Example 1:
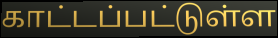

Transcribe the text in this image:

காட்டப்பட்டுள்ள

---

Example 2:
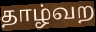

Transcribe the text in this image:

தாழ்வற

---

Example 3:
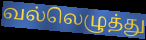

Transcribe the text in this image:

வல்லெழுத்து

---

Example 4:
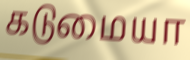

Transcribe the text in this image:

கடுமையா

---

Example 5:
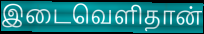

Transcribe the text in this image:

இடைவெளிதான்